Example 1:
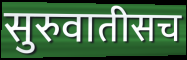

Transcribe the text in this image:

सुरुवातीसच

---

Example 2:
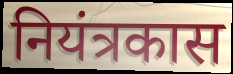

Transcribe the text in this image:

नियंत्रकास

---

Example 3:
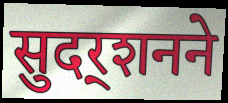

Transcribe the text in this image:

सुदर्शनने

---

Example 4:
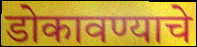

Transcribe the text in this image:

डोकावण्याचे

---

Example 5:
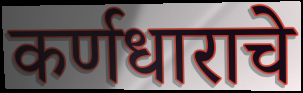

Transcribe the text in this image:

कर्णधाराचे